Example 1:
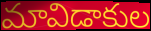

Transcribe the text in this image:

మావిడాకుల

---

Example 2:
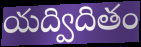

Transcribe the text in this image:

యద్విదితం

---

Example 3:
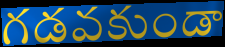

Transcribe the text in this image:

గడవకుండా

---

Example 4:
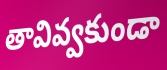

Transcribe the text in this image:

తావివ్వకుండా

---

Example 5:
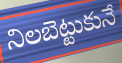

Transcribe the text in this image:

నిలబెట్టుకునే